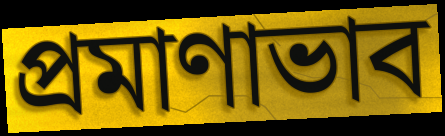
প্রমাণাভাব